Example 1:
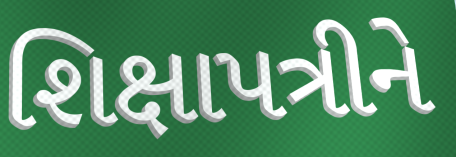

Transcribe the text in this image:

શિક્ષાપત્રીને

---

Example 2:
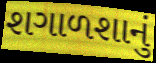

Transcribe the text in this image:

શગાળશાનું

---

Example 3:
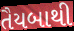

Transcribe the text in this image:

તૈયબાથી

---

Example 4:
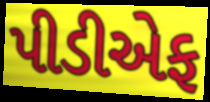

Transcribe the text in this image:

પીડીએફ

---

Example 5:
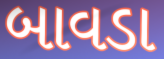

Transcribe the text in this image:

બાવડા